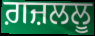
ਗ਼ਜ਼ਲਲੂ